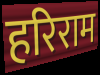
हरिराम